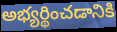
అభ్యర్థించడానికి